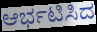
ಆರ್ಭಟಿಸಿದ